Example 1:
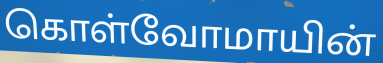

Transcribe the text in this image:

கொள்வோமாயின்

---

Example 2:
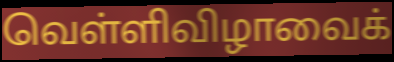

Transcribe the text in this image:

வெள்ளிவிழாவைக்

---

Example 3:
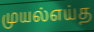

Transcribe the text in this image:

முயல்எய்த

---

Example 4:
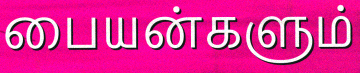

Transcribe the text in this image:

பையன்களும்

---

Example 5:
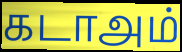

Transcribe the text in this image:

கடாஅம்